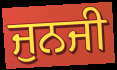
ਜੁਨਜੀ